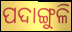
ପଦାଙ୍ଗୁଳି